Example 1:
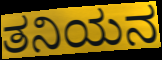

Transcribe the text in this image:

ತನಿಯನ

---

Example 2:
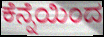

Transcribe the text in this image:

ಕೆನ್ನೆಯಿಂದ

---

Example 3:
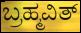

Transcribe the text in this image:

ಬ್ರಹ್ಮವಿತ್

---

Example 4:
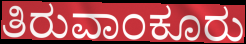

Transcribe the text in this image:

ತಿರುವಾಂಕೂರು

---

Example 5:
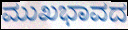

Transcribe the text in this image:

ಮುಖಭಾವದ